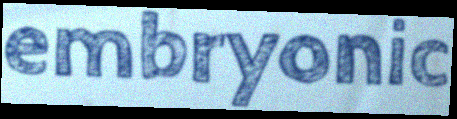
embryonic